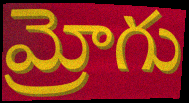
మ్రోగు